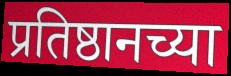
प्रतिष्ठानच्या